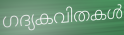
ഗദ്യകവിതകൾ